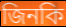
জিনকি